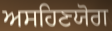
ਅਸਹਿਣਯੋਗ